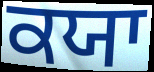
ਕਯਾ